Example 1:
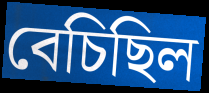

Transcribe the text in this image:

বেচিছিল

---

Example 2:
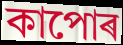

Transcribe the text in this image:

কাপোৰ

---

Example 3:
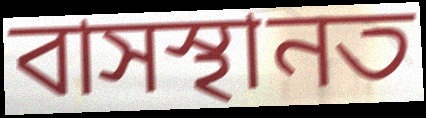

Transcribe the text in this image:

বাসস্থানত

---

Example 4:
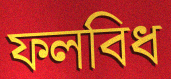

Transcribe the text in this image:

ফলবিধ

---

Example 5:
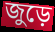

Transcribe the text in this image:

জুড়ে